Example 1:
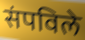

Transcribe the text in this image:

संपविले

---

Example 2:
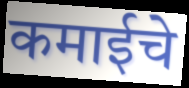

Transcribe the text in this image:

कमाईचे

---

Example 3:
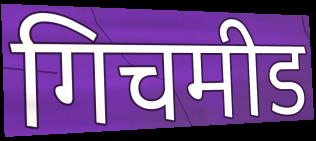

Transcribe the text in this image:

गिचमीड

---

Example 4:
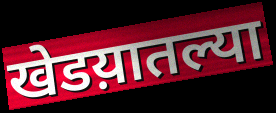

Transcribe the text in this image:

खेडय़ातल्या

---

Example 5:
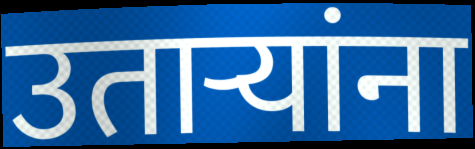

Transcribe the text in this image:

उताऱ्यांना